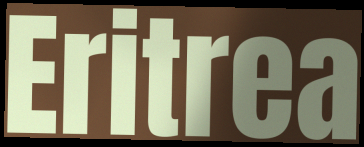
Eritrea